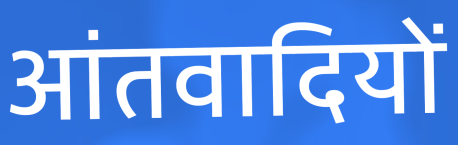
आंतवादियों